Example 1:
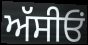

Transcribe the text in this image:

ਅੱਸੀਓਂ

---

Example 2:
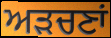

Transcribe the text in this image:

ਅੜਚਣਾਂ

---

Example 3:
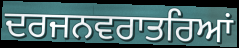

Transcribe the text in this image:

ਦਰਜਨਵਰਾਤਰਿਆਂ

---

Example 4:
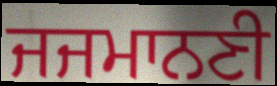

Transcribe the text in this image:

ਜਜਮਾਨਣੀ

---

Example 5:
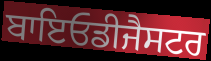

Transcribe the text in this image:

ਬਾਇਓਡੀਜੈਸਟਰ